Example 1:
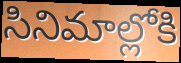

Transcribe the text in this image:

సినిమాల్లోకి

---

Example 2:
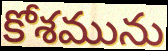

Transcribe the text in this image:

కోశమును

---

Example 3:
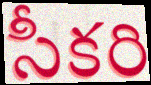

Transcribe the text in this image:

సీకరి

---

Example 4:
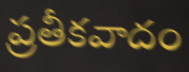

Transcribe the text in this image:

ప్రతీకవాదం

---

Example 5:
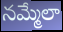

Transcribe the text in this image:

నమ్మేలా